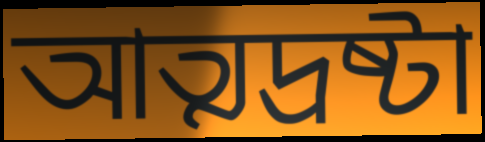
আত্মদ্রষ্টা